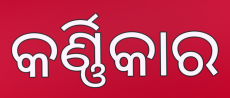
କର୍ଣ୍ଣିକାର